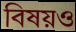
বিষয়ও